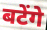
बटेंगे